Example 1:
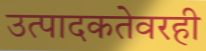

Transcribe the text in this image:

उत्पादकतेवरही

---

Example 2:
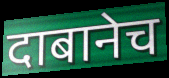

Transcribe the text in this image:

दाबानेच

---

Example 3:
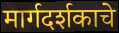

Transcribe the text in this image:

मार्गदर्शकाचे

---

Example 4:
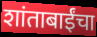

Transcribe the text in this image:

शांताबाईंचा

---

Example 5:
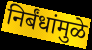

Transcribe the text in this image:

निर्बंधांमुळे